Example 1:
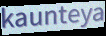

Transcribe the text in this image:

kaunteya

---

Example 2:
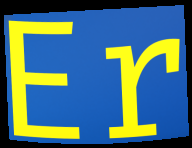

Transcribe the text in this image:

Er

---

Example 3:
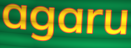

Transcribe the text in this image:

agaru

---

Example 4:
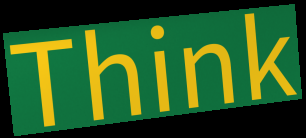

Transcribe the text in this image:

Think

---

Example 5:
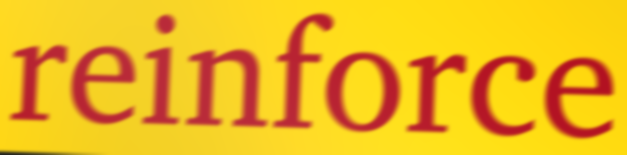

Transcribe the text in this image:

reinforce